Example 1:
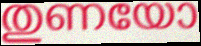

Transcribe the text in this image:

തുണയോ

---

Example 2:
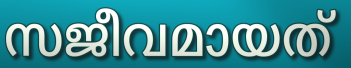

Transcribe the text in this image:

സജീവമായത്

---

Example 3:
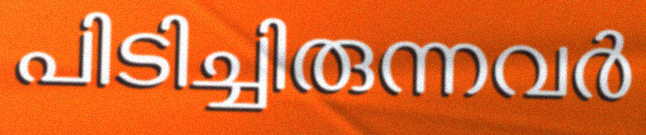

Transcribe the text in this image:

പിടിച്ചിരുന്നവർ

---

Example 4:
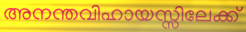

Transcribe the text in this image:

അനന്തവിഹായസ്സിലേക്ക്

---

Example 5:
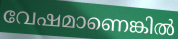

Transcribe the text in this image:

വേഷമാണെങ്കിൽ